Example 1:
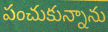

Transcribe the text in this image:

పంచుకున్నాను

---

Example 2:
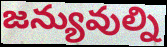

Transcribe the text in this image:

జన్యువుల్ని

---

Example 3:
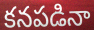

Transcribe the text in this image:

కనపడినా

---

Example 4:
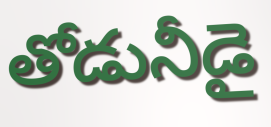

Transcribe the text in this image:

తోడునీడై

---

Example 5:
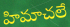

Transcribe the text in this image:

హిమాచలే